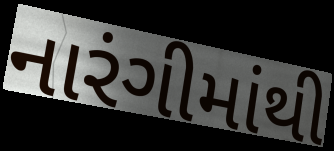
નારંગીમાંથી